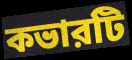
কভারটি